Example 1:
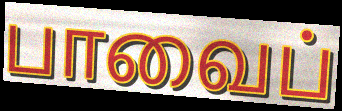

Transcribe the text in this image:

பாவைப்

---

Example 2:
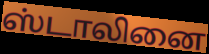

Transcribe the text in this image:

ஸ்டாலினை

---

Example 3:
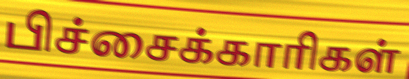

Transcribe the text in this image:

பிச்சைக்காரிகள்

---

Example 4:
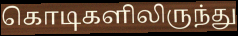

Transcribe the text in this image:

கொடிகளிலிருந்து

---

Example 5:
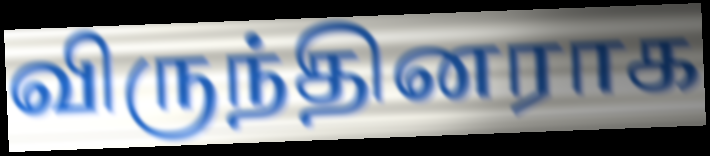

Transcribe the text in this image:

விருந்தினராக